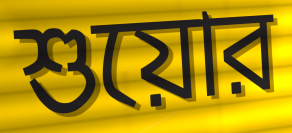
শুয়োর